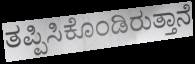
ತಪ್ಪಿಸಿಕೊಂಡಿರುತ್ತಾನೆ